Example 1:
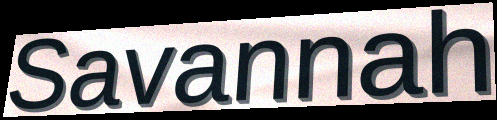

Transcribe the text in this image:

Savannah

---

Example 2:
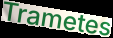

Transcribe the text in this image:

Trametes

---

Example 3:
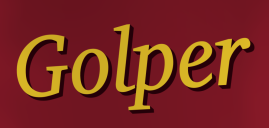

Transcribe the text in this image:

Golper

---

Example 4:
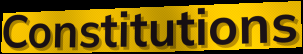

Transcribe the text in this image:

Constitutions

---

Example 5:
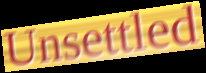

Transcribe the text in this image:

Unsettled